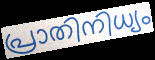
പ്രാതിനിധ്യം